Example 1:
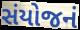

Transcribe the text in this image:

સંયોજનં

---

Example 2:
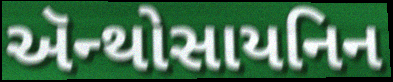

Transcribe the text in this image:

ઍન્થોસાયનિન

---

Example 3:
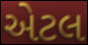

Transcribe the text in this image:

એટલ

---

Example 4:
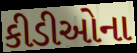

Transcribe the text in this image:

કીડીઓના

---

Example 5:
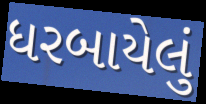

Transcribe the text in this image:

ધરબાયેલું